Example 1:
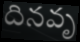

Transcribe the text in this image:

దినవృ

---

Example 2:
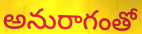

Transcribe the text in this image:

అనురాగంతో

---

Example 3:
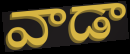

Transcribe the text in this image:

వాడా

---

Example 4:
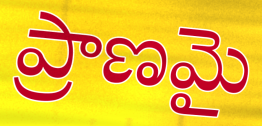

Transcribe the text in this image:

ప్రాణమై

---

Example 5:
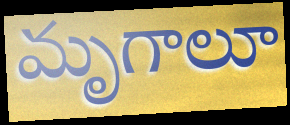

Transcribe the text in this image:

మృగాలూ